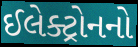
ઈલેક્ટ્રોનનો